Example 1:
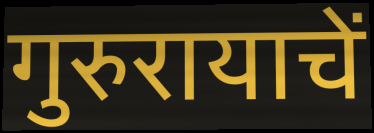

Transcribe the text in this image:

गुरुरायाचें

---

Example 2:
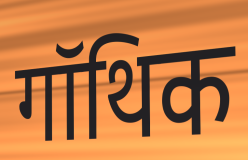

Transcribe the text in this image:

गॉथिक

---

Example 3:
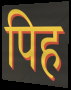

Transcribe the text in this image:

पिह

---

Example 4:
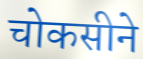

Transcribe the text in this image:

चोकसीने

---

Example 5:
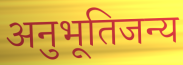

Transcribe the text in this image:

अनुभूतिजन्य